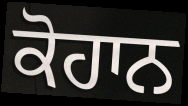
ਕੋਹਾਨ